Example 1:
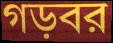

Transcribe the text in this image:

গড়বর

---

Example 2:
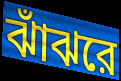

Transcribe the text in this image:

ঝাঁঝরে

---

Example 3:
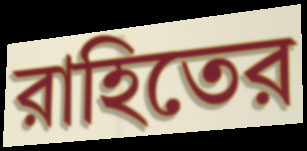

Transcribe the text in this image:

রাহিতের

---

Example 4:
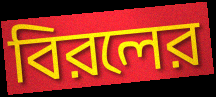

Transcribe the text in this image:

বিরলের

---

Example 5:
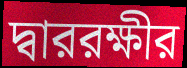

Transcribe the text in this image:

দ্বাররক্ষীর